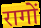
रागों